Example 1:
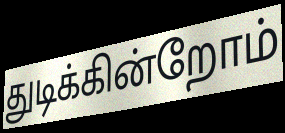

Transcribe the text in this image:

துடிக்கின்றோம்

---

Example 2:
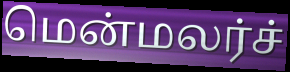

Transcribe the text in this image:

மென்மலர்ச்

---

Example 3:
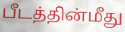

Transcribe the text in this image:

பீடத்தின்மீது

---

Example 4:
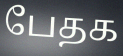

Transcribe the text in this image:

பேதக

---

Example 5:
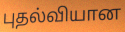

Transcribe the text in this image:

புதல்வியான